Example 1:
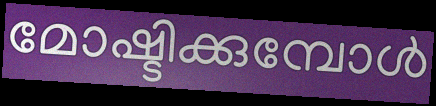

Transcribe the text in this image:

മോഷ്ടിക്കുമ്പോൾ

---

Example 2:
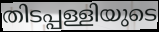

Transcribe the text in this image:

തിടപ്പള്ളിയുടെ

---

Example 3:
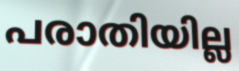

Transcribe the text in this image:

പരാതിയില്ല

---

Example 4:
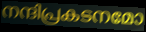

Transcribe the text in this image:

നന്ദിപ്രകടനമോ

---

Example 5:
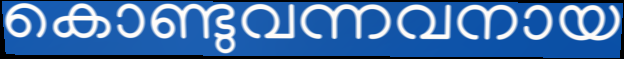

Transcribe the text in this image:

കൊണ്ടുവന്നവനായ